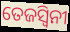
ତେଜସ୍ଵିନୀ